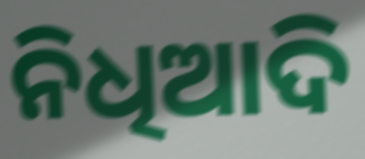
ନିଧିଆଦି